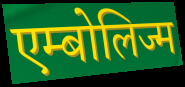
एम्बोलिज्म